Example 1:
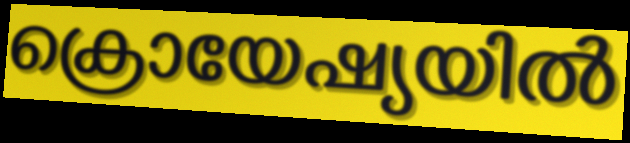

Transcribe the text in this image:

ക്രൊയേഷ്യയിൽ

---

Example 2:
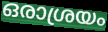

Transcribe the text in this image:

ഒരാശ്രയം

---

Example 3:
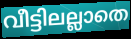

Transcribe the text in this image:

വീട്ടിലല്ലാതെ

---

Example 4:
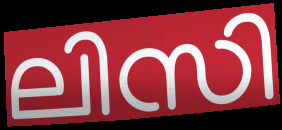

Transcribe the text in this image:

ലിസി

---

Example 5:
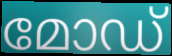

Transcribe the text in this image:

മോഡ്